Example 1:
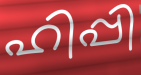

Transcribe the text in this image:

ഹിപ്പി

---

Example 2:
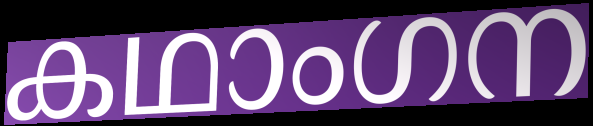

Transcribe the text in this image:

കഥാംഗന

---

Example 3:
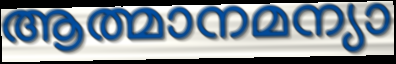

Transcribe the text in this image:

ആത്മാനമന്യാ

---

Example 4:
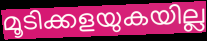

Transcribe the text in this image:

മൂടിക്കളയുകയില്ല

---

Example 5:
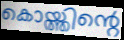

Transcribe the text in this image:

കൊയ്ത്തിന്റെ